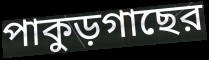
পাকুড়গাছের